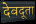
देवदूता